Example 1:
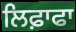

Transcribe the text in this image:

ਲਿਫ਼ਾਫਾ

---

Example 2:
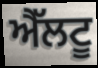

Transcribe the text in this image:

ਐੱਲਟੂ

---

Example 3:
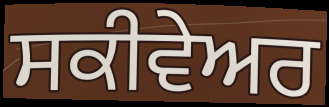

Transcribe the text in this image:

ਸਕੀਵੇਅਰ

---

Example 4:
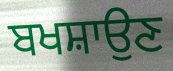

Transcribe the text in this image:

ਬਖਸ਼ਾਉਣ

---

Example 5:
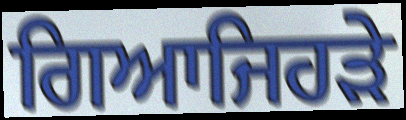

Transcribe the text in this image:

ਗਿਆਜਿਹੜੇ